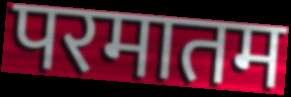
परमातम